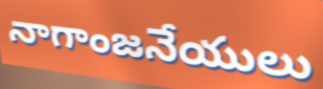
నాగాంజనేయులు